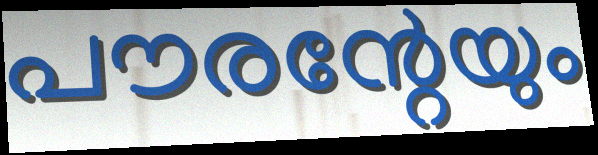
പൗരന്റേയും